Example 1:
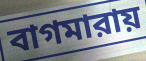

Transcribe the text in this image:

বাগমারায়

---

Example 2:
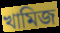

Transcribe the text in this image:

খামিজ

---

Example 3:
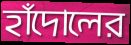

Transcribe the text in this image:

হাঁদোলের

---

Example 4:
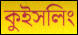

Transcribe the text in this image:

কুইসলিং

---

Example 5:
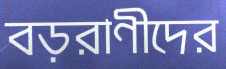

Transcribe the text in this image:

বড়রাণীদের